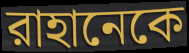
রাহানেকে